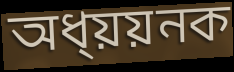
অধ্য়য়নক